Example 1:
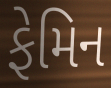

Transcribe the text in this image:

ફેમિન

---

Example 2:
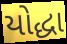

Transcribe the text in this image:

યોદ્ધા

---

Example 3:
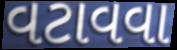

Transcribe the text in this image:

વટાવવા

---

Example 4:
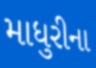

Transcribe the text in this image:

માધુરીના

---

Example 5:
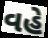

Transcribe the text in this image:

વહે